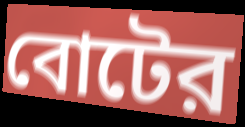
বোটের